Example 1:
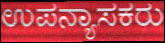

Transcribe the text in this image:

ಉಪನ್ಯಾಸಕರು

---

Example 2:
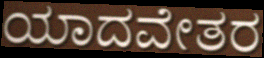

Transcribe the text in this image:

ಯಾದವೇತರ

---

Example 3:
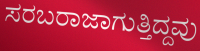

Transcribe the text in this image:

ಸರಬರಾಜಾಗುತ್ತಿದ್ದವು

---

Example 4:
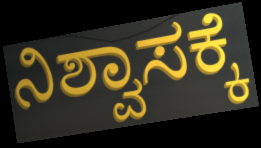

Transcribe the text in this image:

ನಿಶ್ವಾಸಕ್ಕೆ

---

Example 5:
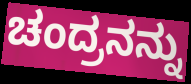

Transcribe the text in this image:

ಚಂದ್ರನನ್ನು